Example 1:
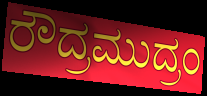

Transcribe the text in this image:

ರೌದ್ರಮುದ್ರಂ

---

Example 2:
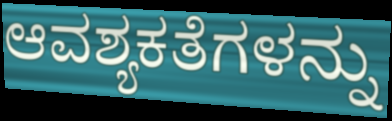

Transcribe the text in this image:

ಆವಶ್ಯಕತೆಗಳನ್ನು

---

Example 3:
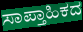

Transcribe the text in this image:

ಸಾಪ್ತಾಹಿಕದ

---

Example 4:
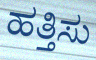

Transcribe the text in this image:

ಹತ್ತಿಸು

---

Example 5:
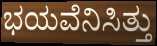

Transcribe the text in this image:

ಭಯವೆನಿಸಿತ್ತು